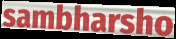
sambharsho